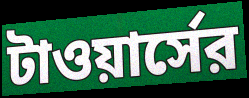
টাওয়ার্সের